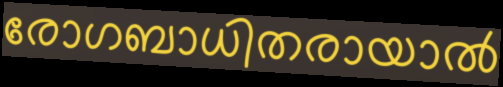
രോഗബാധിതരായാൽ